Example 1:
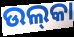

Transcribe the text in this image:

ଉଲ୍‌କା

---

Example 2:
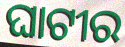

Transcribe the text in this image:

ଘାଟୀର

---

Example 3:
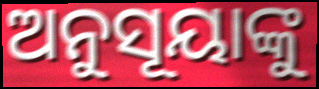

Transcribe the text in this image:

ଅନୁସୂୟାଙ୍କୁ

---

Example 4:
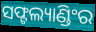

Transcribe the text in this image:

ସଫ୍ଟଲ୍ୟାଣ୍ଡିଂର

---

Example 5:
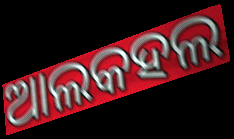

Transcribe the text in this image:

ଆଲକହଲ